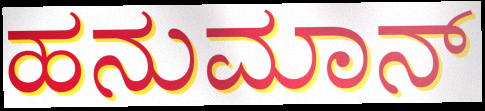
ಹನುಮಾನ್